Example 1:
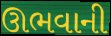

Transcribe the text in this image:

ઊભવાની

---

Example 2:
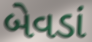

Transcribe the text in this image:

બેવડાં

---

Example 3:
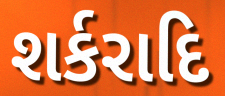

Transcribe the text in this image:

શર્કરાદિ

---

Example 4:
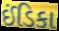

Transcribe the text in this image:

ઈંડિકા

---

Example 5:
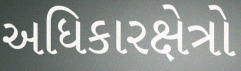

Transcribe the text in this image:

અધિકારક્ષેત્રો